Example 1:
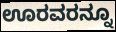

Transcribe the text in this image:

ಊರವರನ್ನೂ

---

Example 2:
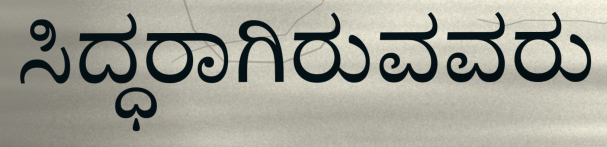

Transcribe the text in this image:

ಸಿದ್ಧರಾಗಿರುವವರು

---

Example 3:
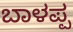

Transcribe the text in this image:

ಬಾಳಪ್ಪ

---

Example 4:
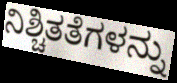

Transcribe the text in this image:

ನಿಶ್ಚಿತತೆಗಳನ್ನು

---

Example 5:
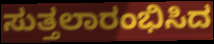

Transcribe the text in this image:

ಸುತ್ತಲಾರಂಭಿಸಿದ